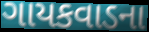
ગાયકવાડના